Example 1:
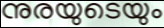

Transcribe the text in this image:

നുരയുടെയും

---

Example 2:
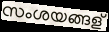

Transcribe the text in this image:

സംശയങ്ങള്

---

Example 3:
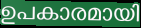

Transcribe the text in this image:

ഉപകാരമായി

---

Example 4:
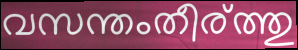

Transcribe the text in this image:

വസന്തംതീര്ത്തു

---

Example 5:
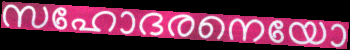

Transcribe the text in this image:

സഹോദരനെയോ